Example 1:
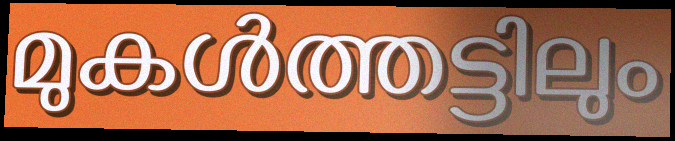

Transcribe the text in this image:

മുകൾത്തട്ടിലും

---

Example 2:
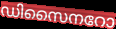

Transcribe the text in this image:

ഡിസൈനറോ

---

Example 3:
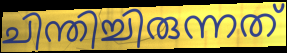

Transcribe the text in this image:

ചിന്തിച്ചിരുന്നത്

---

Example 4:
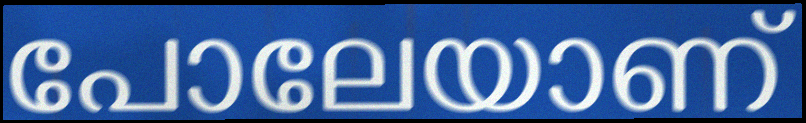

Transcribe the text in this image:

പോലേയാണ്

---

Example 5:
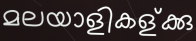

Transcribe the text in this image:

മലയാളികള്ക്കു